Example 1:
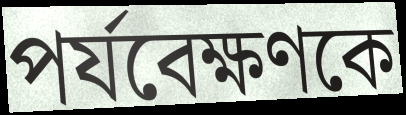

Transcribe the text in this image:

পর্যবেক্ষণকে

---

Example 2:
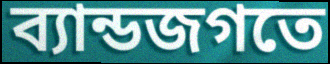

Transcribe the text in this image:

ব্যান্ডজগতে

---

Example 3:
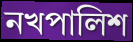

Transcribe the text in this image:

নখপালিশ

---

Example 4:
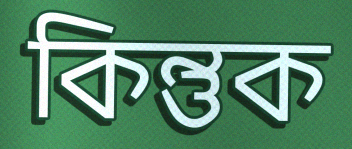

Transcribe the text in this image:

কিন্তুক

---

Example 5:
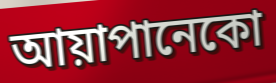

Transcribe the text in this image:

আয়াপানেকো